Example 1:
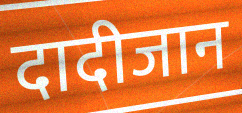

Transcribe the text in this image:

दादीजान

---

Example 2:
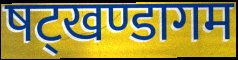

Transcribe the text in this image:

षट्खण्डागम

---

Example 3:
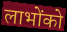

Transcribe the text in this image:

लाभोंको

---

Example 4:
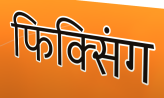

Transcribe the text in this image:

फिक्‍सिंग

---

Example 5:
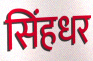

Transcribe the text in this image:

सिंहधर